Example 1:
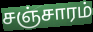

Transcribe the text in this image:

சஞ்சாரம்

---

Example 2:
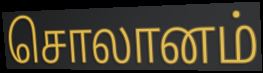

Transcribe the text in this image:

சொலானம்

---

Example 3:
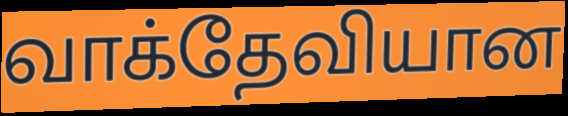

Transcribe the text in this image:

வாக்தேவியான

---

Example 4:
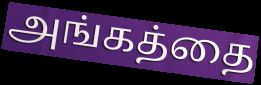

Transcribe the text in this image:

அங்கத்தை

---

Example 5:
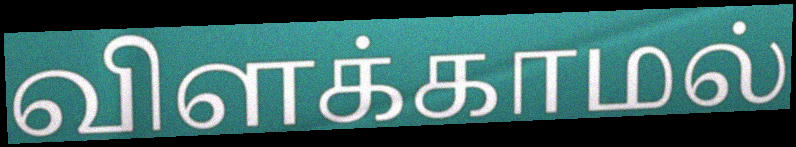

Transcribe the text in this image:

விளக்காமல்